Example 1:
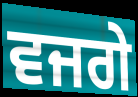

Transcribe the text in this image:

ਵਜਗੇ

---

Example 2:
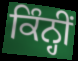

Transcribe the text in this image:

ਕਿੰਨ੍ਹੀਂ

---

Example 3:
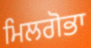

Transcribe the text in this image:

ਮਿਲਗੋਭਾ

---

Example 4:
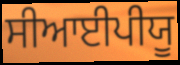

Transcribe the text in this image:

ਸੀਆਈਪੀਯੂ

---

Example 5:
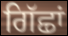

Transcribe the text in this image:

ਗਿੱਛਾਂ